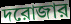
দরোজার